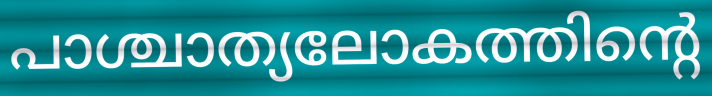
പാശ്ചാത്യലോകത്തിന്റെ